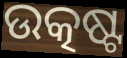
ଉତ୍କଷ୍ଟ